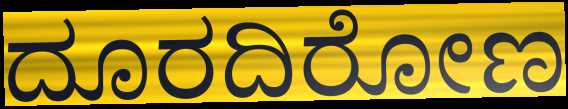
ದೂರದಿರೋಣ